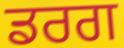
ਡਰਗ